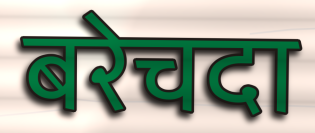
बरेचदा